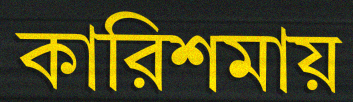
কারিশমায়